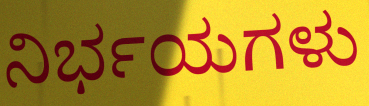
ನಿರ್ಭಯಗಳು